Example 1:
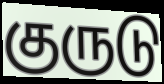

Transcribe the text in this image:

குருடு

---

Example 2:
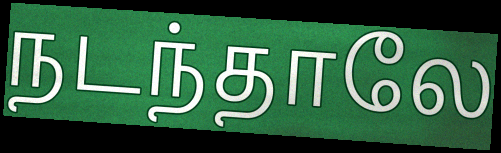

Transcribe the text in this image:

நடந்தாலே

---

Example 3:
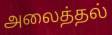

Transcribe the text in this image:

அலைத்தல்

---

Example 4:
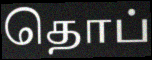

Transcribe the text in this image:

தொப்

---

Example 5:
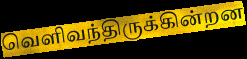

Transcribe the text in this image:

வெளிவந்திருக்கின்றன